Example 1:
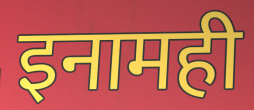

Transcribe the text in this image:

इनामही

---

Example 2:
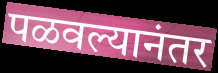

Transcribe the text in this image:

पळवल्यानंतर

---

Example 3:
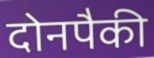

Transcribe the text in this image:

दोनपैकी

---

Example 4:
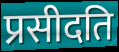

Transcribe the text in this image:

प्रसीदति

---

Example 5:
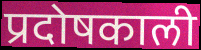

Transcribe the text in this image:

प्रदोषकाली